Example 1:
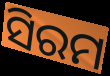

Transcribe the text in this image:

ସିରମ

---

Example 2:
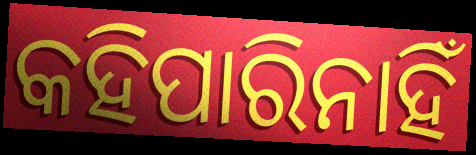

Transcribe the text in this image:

କହିପାରିନାହିଁ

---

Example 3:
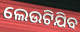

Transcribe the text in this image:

ଲେଉଟିଯିବ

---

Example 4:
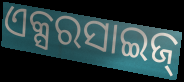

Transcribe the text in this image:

ଏକ୍ସରସାଇଜ୍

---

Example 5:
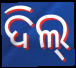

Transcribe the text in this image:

ଦିଲ୍